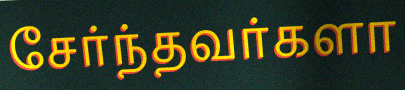
சேர்ந்தவர்களா